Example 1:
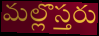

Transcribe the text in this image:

మల్లొస్తరు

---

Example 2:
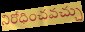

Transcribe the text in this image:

నిరోధించవచ్చు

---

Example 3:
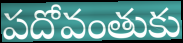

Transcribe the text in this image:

పదోవంతుకు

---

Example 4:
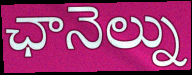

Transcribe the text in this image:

ఛానెల్ను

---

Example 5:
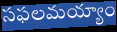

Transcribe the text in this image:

సఫలమయ్యాం